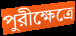
পুরীক্ষেত্রে